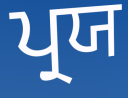
ਪ੍ਰਯ